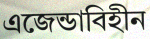
এজেন্ডাবিহীন